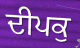
ਦੀਪਕੁ